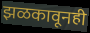
झळकावूनही